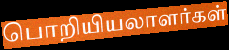
பொறியியலாளர்கள்